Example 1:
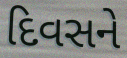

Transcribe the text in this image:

દિવસને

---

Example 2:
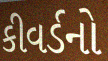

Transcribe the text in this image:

કીવર્ડનો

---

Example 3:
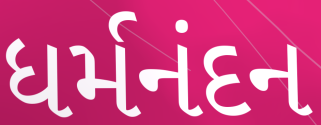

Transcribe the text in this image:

ધર્મનંદન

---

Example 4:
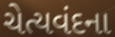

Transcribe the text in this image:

ચેત્યવંદના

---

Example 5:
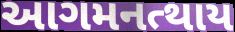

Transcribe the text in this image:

આગમનત્થાય